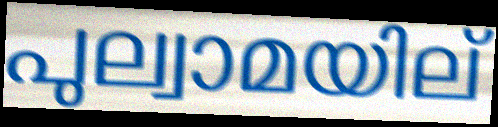
പുല്വാമയില്